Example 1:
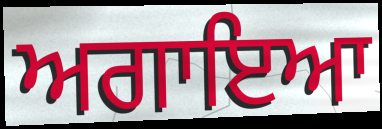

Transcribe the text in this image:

ਅਗਾਇਆ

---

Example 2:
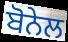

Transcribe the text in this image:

ਬੋਨੇਲ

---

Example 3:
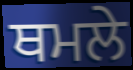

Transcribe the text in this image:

ਥਮਲੇ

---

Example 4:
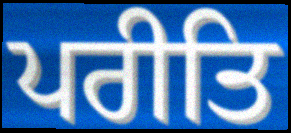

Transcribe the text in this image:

ਪਰੀਤਿ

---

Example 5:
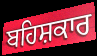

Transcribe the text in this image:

ਬਹਿਸ਼ਕਾਰ